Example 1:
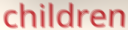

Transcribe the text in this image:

children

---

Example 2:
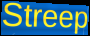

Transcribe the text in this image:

Streep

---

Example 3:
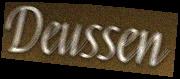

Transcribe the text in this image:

Deussen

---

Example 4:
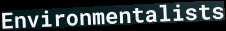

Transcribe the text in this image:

Environmentalists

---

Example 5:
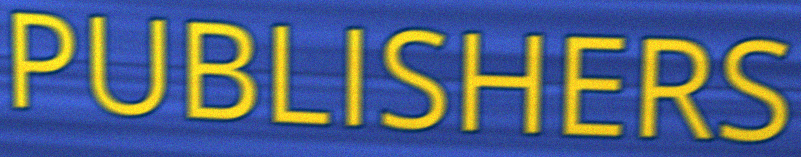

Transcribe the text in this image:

PUBLISHERS